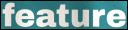
feature